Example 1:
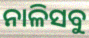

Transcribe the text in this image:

ନାଳିସବୁ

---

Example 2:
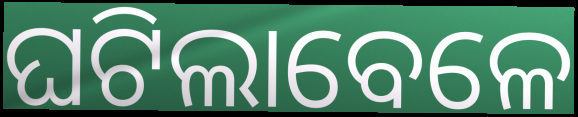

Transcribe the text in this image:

ଘଟିଲାବେଳେ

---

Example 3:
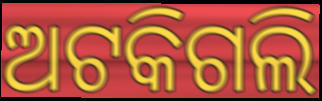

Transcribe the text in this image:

ଅଟକିଗଲି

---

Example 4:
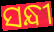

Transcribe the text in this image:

ସନ୍ଧୀ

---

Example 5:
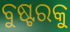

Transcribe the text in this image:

ବୁଷ୍ଟରକୁ